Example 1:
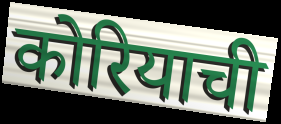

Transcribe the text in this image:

कोरियाची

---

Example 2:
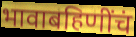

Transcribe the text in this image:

भावाबहिणींचं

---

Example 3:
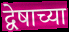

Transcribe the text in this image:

द्वेषाच्या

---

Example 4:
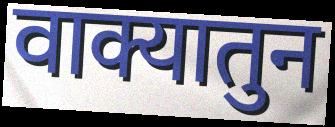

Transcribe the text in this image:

वाक्यातुन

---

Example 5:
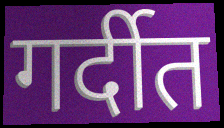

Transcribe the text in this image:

गर्दीत